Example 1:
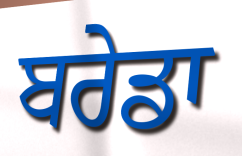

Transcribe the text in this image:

ਬਰੇਡਾ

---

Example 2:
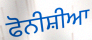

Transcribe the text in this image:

ਫੋਨੀਸ਼ੀਆ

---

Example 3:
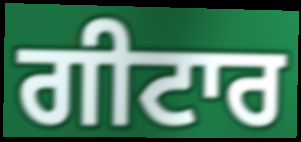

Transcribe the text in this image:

ਗੀਟਾਰ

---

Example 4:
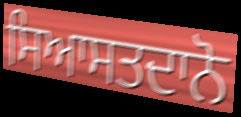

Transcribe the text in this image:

ਸਿਆਸਤਦਾਨੋ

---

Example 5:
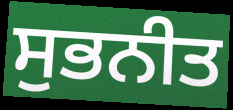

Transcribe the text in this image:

ਸੁਭਨੀਤ